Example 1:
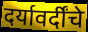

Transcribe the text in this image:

दर्यावर्दींचे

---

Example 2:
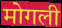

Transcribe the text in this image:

मोगली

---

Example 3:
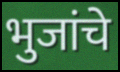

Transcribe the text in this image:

भुजांचे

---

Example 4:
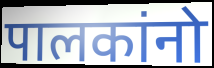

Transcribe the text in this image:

पालकांनो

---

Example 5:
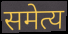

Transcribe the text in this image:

समेत्य